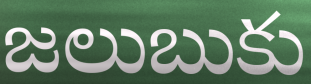
జలుబుకు